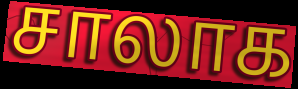
சாலாக